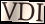
VDI